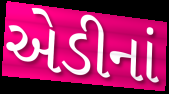
એડીનાં